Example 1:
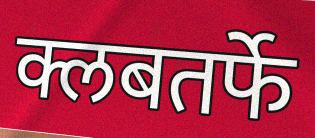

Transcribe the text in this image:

क्लबतर्फे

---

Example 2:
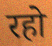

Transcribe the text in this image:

रहो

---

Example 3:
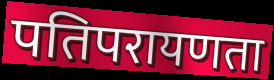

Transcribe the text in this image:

पतिपरायणता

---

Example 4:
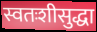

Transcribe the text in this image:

स्वतःशीसुद्धा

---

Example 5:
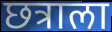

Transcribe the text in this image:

छत्राला